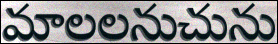
మాలలనుచును